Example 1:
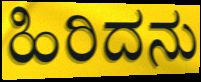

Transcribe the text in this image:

ಹಿರಿದನು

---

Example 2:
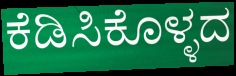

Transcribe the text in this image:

ಕೆಡಿಸಿಕೊಳ್ಳದ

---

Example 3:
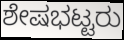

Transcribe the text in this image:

ಶೇಷಭಟ್ಟರು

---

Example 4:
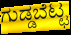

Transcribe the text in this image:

ಗುಡ್ಡಬೆಟ್ಟ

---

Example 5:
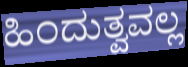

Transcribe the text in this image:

ಹಿಂದುತ್ವವಲ್ಲ